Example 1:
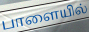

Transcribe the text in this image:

பாளையில்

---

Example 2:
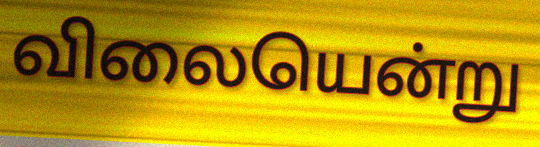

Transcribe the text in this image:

விலையென்று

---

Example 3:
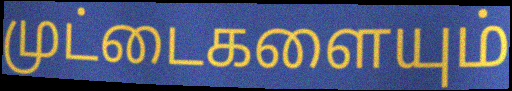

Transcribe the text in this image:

முட்டைகளையும்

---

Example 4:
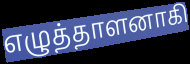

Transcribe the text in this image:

எழுத்தாளனாகி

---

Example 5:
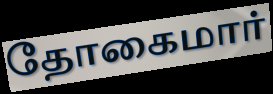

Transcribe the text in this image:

தோகைமார்